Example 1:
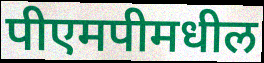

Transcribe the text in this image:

पीएमपीमधील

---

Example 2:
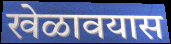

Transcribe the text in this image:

खेळावयास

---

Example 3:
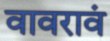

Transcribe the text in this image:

वावरावं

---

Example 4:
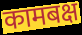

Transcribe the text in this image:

कामबक्ष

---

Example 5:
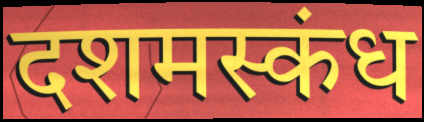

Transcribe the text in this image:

दशमस्कंध